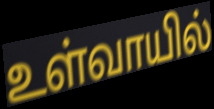
உள்வாயில்